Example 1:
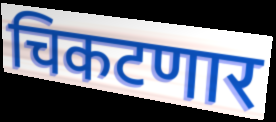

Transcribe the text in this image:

चिकटणार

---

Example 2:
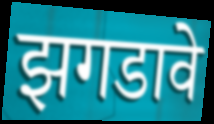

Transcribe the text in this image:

झगडावे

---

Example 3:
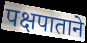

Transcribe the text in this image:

पक्षपाताने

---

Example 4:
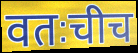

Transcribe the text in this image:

वतःचीच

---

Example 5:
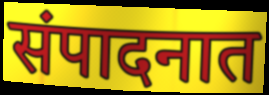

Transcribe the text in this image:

संपादनात